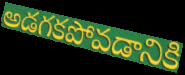
అడగకపోవడానికి